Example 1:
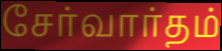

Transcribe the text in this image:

சேர்வார்தம்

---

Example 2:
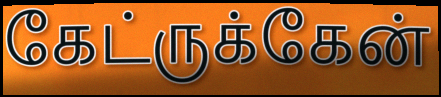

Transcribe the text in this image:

கேட்ருக்கேன்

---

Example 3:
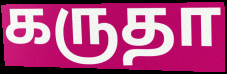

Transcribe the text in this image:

கருதா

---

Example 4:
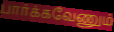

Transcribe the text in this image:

பார்க்கவேணும்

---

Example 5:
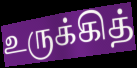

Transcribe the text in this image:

உருக்கித்